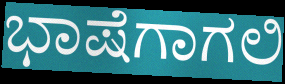
ಭಾಷೆಗಾಗಲಿ